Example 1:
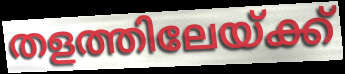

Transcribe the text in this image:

തളത്തിലേയ്ക്ക്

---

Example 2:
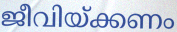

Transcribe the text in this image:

ജീവിയ്ക്കണം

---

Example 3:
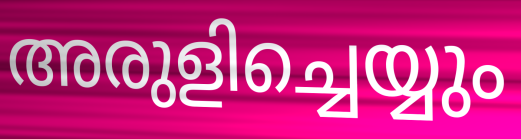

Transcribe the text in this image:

അരുളിച്ചെയ്യും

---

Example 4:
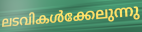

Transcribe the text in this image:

ലടവികൾക്കേലുന്നു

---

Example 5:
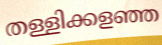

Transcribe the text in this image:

തള്ളിക്കളഞ്ഞ